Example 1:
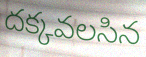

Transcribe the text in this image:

దక్కవలసిన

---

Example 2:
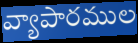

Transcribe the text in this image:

వ్యాపారముల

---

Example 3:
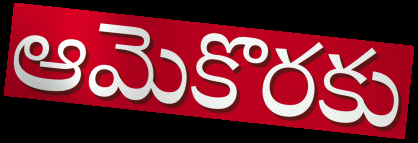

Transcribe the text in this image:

ఆమెకొరకు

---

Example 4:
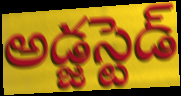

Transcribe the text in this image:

అడ్జస్టెడ్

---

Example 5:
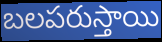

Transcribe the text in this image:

బలపరుస్తాయి